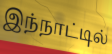
இந்நாட்டில்